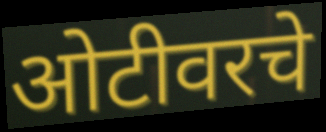
ओटीवरचे